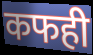
कफही